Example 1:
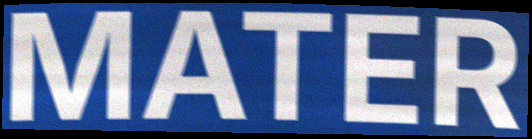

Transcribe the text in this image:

MATER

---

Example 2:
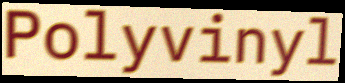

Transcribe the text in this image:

Polyvinyl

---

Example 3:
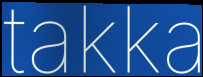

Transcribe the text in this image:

takka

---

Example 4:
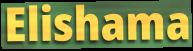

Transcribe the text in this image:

Elishama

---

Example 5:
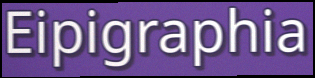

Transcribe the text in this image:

Eipigraphia